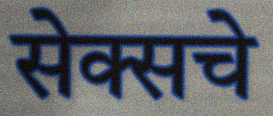
सेक्सचे